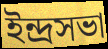
ইন্দ্রসভা